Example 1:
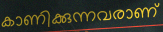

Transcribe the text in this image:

കാണിക്കുന്നവരാണ്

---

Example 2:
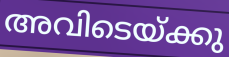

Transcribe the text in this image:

അവിടെയ്ക്കു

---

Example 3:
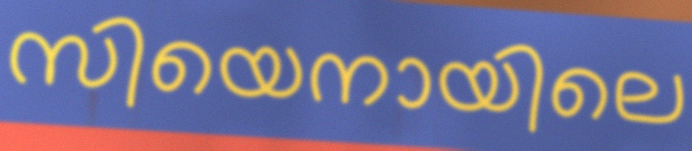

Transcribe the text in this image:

സിയെനായിലെ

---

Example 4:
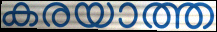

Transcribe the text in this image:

കരയാത്ത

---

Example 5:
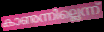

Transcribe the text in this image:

കാണുന്നില്ലെന്ന്